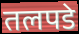
तलपडे